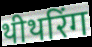
थीथरिंग